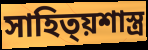
সাহিত্য়শাস্ত্ৰ